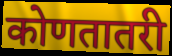
कोणतातरी